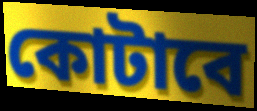
কোটাবে